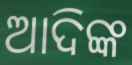
ଆଦିଙ୍କ